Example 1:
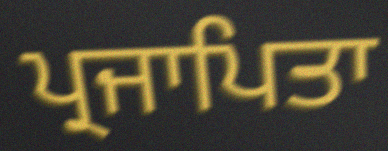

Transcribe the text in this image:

ਪ੍ਰਜਾਪਿਤਾ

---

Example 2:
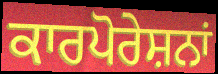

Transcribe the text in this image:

ਕਾਰਪੋਰੇਸ਼ਨਾਂ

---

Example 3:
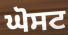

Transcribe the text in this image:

ਘੋਸਟ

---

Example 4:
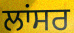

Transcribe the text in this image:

ਲਾਂਸਰ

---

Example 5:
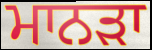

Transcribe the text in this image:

ਮਾਨੜਾ